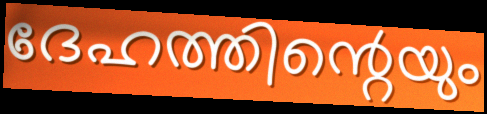
ദേഹത്തിന്റെയും